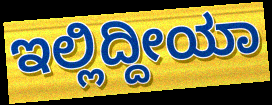
ಇಲ್ಲಿದ್ದೀಯಾ